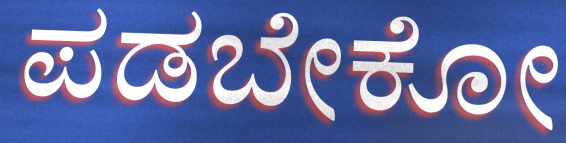
ಪಡಬೇಕೋ